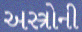
અસ્ત્રોની